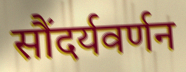
सौंदर्यवर्णन